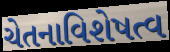
ચેતનાવિશેષત્વ